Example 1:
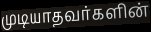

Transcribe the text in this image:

முடியாதவர்களின்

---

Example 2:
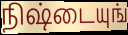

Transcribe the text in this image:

நிஷ்டையுங்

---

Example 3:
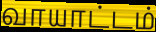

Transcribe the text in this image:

வாயாட்டம்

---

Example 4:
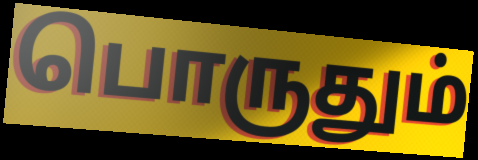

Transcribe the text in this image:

பொருதும்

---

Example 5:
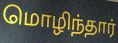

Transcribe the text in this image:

மொழிந்தார்